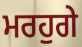
ਮਰਹੁਗੇ